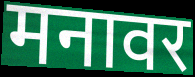
मनावर